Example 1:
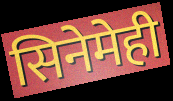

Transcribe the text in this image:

सिनेमेही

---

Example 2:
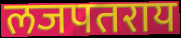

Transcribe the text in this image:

लजपतराय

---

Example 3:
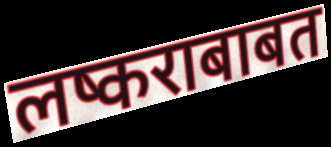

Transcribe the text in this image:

लष्कराबाबत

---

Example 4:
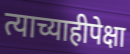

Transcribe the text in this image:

त्याच्याहीपेक्षा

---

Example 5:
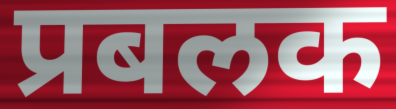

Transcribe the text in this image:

प्रबलक